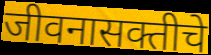
जीवनासक्तीचे